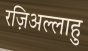
रज़िअल्लाहु